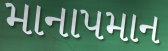
માનાપમાન